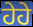
ਹੇਹੇ